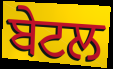
ਬੇਟਲ